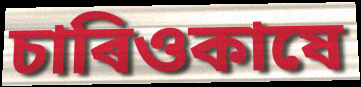
চাৰিওকাষে